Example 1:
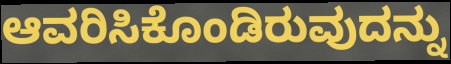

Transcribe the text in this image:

ಆವರಿಸಿಕೊಂಡಿರುವುದನ್ನು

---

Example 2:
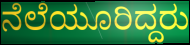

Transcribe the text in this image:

ನೆಲೆಯೂರಿದ್ದರು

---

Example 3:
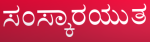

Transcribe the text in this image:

ಸಂಸ್ಕಾರಯುತ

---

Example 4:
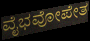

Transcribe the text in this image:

ವೈಭವೋಪೇತ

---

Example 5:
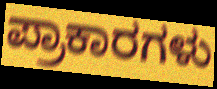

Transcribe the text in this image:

ಪ್ರಾಕಾರಗಳು